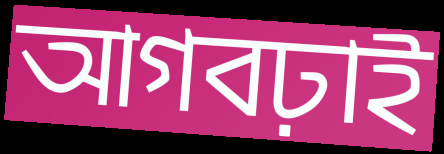
আগবঢ়াই